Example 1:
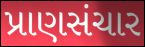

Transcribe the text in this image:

પ્રાણસંચાર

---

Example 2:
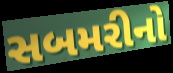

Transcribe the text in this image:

સબમરીનો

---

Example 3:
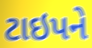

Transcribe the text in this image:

ટાઇપને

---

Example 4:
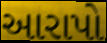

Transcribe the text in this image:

આરાપો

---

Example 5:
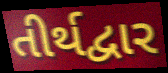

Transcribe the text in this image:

તીર્થદ્વાર